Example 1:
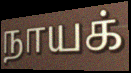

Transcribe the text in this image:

நாயக்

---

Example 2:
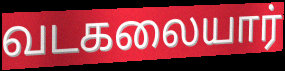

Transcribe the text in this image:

வடகலையார்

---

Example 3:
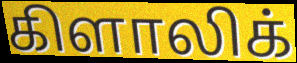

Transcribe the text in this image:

கிளாலிக்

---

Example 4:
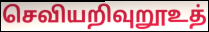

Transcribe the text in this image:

செவியறிவுறூஉத்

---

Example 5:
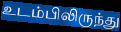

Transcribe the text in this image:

உடம்பிலிருந்து